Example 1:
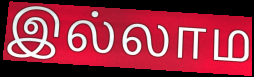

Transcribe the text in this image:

இல்லாம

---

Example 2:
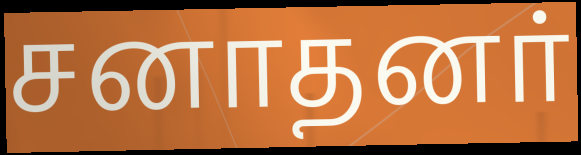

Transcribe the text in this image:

சனாதனர்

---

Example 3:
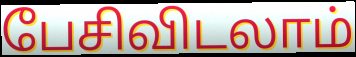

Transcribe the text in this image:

பேசிவிடலாம்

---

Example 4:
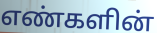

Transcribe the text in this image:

எண்களின்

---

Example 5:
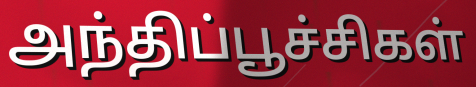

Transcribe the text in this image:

அந்திப்பூச்சிகள்